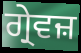
ਗ੍ਰੇਵਜ਼